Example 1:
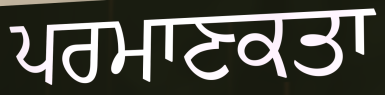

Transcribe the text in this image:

ਪਰਮਾਣਕਤਾ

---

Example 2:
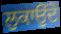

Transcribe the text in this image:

ਲੁਕਾਉਂਦੇ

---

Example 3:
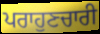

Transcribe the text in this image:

ਪਰਾਹੁਣਚਾਰੀ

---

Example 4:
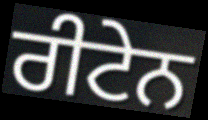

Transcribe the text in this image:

ਰੀਟੇਨ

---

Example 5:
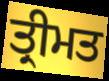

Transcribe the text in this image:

ਤ੍ਰੀਮਤ